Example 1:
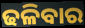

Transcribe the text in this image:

ଢଳିବାର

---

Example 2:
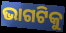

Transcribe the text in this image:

ଭାଗଟିକୁ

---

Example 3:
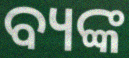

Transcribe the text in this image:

ବ୍ୟଙ୍କ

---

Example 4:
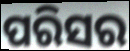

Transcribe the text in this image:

ପରିସର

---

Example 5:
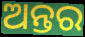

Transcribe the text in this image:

ଅନ୍ତର